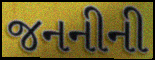
જનનીની